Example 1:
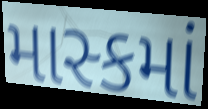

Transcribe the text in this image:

માસ્કમાં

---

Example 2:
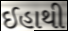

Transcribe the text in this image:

ઈહાથી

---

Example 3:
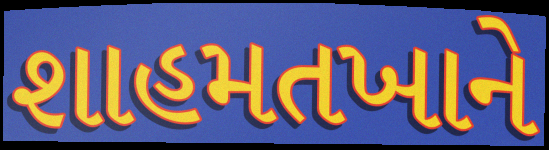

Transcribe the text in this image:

શાહમતખાને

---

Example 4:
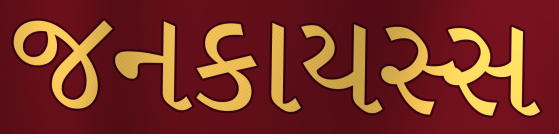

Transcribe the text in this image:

જનકાયસ્સ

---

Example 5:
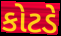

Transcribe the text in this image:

કોટડે